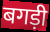
बगड़ी